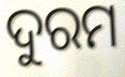
ଦୁରମ